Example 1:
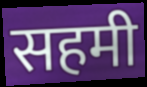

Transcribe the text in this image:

सहमी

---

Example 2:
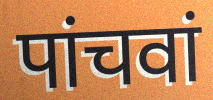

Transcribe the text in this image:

पांचवां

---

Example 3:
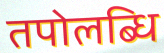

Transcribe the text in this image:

तपोलब्धि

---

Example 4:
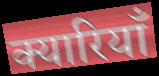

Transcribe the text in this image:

क्यारियाँ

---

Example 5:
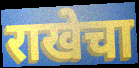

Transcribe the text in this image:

राखेचा